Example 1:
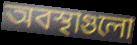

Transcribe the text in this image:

অবস্থাগুলো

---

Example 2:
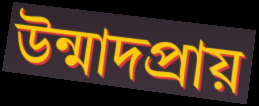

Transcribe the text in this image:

উন্মাদপ্রায়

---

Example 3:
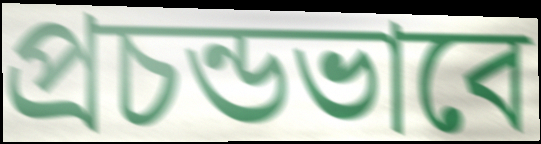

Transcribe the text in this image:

প্রচন্ডভাবে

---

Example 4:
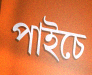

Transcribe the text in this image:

পাইচে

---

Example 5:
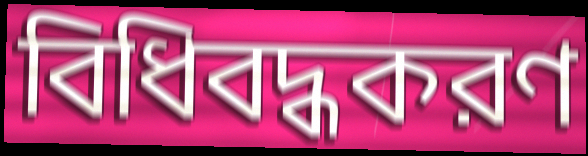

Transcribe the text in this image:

বিধিবদ্ধকরণ